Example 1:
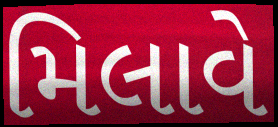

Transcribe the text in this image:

મિલાવે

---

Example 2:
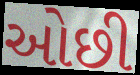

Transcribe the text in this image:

ઓછી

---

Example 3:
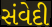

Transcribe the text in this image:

સંવેદી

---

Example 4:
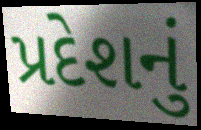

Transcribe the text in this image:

પ્રદેશનું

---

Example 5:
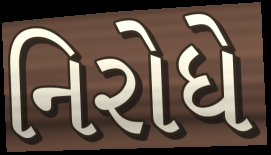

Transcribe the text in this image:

નિરોધે